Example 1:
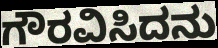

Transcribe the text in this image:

ಗೌರವಿಸಿದನು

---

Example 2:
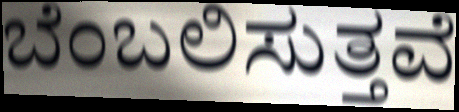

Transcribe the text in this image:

ಬೆಂಬಲಿಸುತ್ತವೆ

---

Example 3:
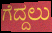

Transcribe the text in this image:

ಗೆದ್ದಲು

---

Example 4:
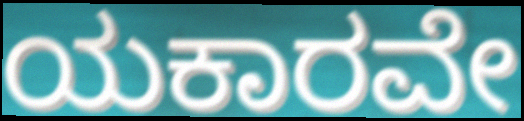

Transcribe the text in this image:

ಯಕಾರವೇ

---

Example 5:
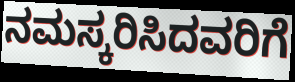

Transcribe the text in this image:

ನಮಸ್ಕರಿಸಿದವರಿಗೆ